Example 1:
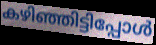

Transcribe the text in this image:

കഴിഞ്ഞിട്ടിപ്പോൾ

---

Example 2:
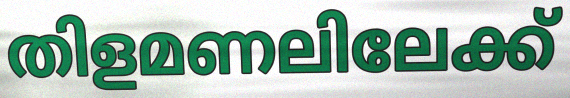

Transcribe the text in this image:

തിളമണലിലേക്ക്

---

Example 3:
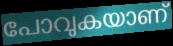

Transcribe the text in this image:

പോവുകയാണ്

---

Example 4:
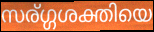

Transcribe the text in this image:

സര്ഗ്ഗശക്തിയെ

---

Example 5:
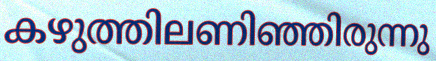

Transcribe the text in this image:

കഴുത്തിലണിഞ്ഞിരുന്നു